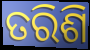
ତରିଶି